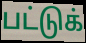
பட்டுக்